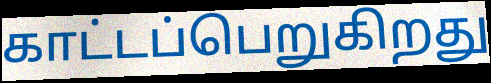
காட்டப்பெறுகிறது